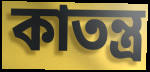
কাতন্ত্র